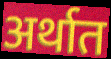
अर्थात